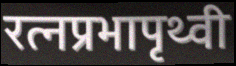
रत्नप्रभापृथ्वी